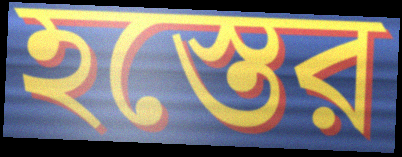
হস্তের